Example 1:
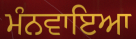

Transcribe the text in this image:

ਮੰਨਵਾਇਆ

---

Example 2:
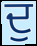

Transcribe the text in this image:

ਦੁ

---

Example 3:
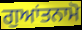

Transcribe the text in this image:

ਗੁਆਂਤਨਾਮੋ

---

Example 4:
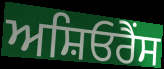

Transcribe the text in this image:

ਅਸ਼ਿਓਰੈਂਸ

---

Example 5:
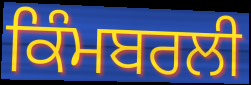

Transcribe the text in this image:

ਕਿੰਮਬਰਲੀ